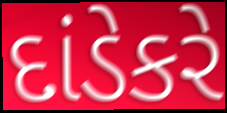
દાંડેકરે